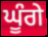
ਘੂੰਗੇ